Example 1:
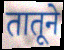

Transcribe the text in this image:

तातूने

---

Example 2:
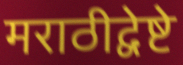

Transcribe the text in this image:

मराठीद्वेष्टे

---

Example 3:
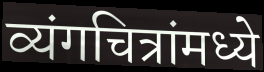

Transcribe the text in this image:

व्यंगचित्रांमध्ये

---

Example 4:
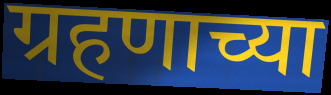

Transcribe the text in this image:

ग्रहणाच्या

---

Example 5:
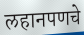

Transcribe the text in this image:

लहानपणचे